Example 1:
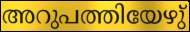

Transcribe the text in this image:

അറുപത്തിയേഴു്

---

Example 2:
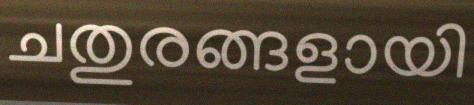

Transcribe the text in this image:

ചതുരങ്ങളായി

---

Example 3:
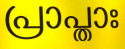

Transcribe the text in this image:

പ്രാപ്താഃ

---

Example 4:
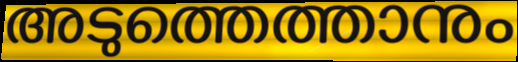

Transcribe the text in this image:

അടുത്തെത്താനും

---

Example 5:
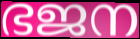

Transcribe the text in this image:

ഭജന